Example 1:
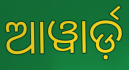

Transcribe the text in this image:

ଆୱାର୍ଡ଼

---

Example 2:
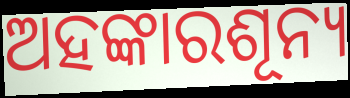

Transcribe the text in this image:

ଅହଙ୍କାରଶୂନ୍ୟ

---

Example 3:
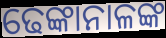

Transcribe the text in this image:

ଢେଙ୍କାନାଳଙ୍କ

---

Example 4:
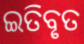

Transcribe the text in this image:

ଇତିବୃତ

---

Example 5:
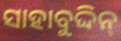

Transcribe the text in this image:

ସାହାବୁଦ୍ଦିନ୍